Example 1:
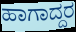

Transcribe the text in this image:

ಹಾಗಾದ್ದರ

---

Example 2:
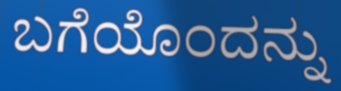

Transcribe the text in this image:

ಬಗೆಯೊಂದನ್ನು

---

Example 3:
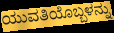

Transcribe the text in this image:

ಯುವತಿಯೊಬ್ಬಳನ್ನು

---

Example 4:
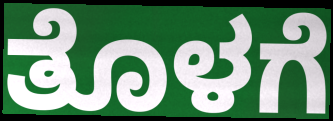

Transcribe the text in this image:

ತೊಳಗೆ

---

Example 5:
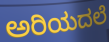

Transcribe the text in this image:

ಅರಿಯದಲೆ